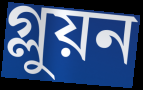
গ্লুয়ন